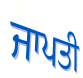
ਜਾਪਤੀ